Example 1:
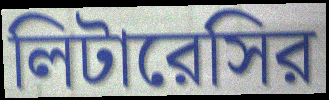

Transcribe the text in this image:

লিটারেসির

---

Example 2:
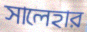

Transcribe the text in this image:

সালেহার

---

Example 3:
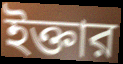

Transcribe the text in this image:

ইক্তার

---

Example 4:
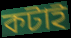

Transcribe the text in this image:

কটাই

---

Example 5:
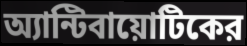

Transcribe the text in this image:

অ্যান্টিবায়োটিকের